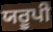
ਯਰੂਪੀ